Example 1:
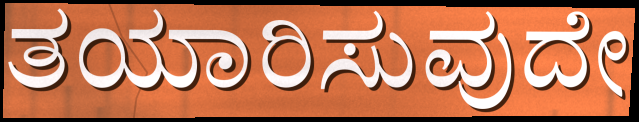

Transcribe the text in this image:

ತಯಾರಿಸುವುದೇ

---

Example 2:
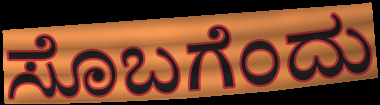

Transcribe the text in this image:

ಸೊಬಗೆಂದು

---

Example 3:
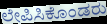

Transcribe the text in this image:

ಲೇಪಿಸಿಕೊಂಡರು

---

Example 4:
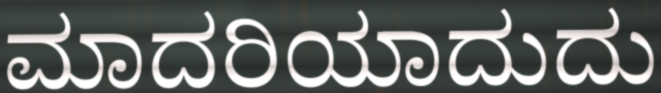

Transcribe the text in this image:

ಮಾದರಿಯಾದುದು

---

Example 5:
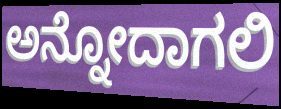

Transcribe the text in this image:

ಅನ್ನೋದಾಗಲಿ